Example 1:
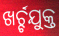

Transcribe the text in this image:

ଖର୍ଚ୍ଚଯୁକ୍ତ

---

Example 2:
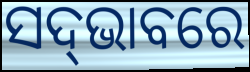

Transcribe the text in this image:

ସଦ୍‌ଭାବରେ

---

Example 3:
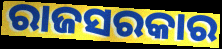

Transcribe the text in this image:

ରାଜସରକାର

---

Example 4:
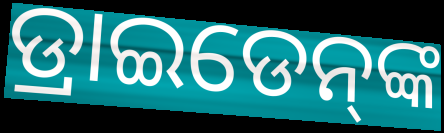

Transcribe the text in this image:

ଡ୍ରାଇଡେନ୍‌ଙ୍କ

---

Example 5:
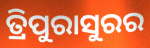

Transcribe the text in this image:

ତ୍ରିପୁରାସୁରର